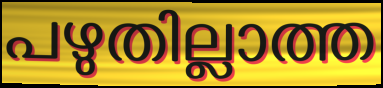
പഴുതില്ലാത്ത